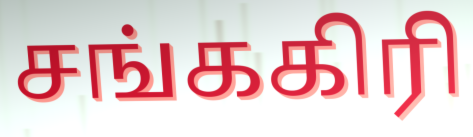
சங்ககிரி